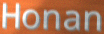
Honan